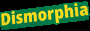
Dismorphia